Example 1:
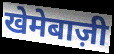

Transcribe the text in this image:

खेमेबाज़ी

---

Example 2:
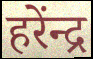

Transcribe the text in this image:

हरेंन्द्र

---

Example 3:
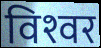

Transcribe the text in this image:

विश्वर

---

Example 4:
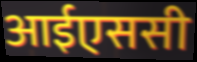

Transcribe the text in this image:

आईएससी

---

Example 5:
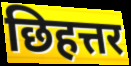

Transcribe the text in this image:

छिहत्तर